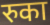
रुका